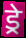
ड्रे